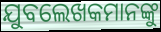
ଯୁବଲେଖକମାନଙ୍କୁ